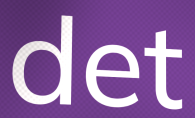
det